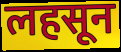
लहसून